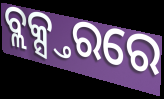
ବ୍ଲକ୍ସ୍ତରରେ